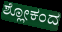
ಶ್ಲೋಕಂದ